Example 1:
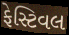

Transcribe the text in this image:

ફેસ્ટિવલ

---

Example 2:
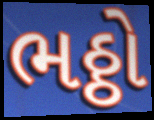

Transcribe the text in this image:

ભઠ્ઠો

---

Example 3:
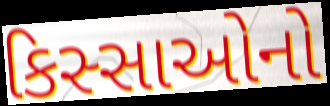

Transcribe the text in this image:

કિસ્સાઓનો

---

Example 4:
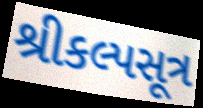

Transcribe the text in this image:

શ્રીકલ્પસૂત્ર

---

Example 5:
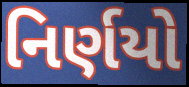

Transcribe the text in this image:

નિર્ણયો